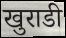
खुराडी